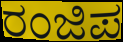
ರಂಜಿಪ